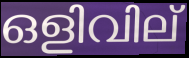
ഒളിവില്